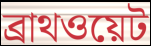
ব্রাথওয়েট